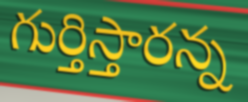
గుర్తిస్తారన్న